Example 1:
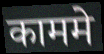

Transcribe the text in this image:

काममे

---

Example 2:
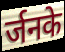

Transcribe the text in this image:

र्जनके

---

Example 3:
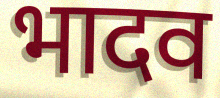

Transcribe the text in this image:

भादव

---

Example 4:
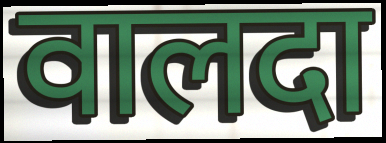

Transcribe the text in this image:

वालदा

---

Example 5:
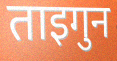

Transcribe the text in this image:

ताइगुन